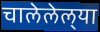
चालेलेल्या